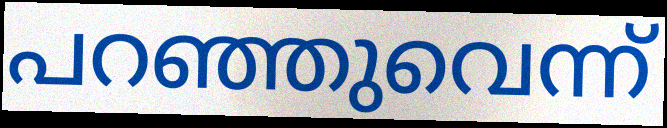
പറഞ്ഞുവെന്ന്